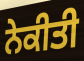
ਨੇਕੀਤੀ